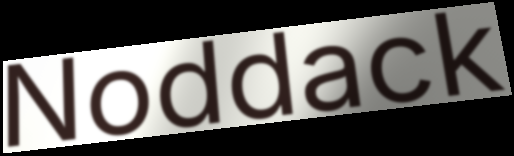
Noddack